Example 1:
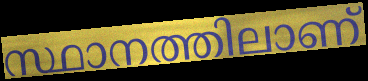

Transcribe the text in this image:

സ്ഥാനത്തിലാണ്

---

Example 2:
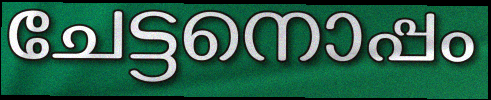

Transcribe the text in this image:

ചേട്ടനൊപ്പം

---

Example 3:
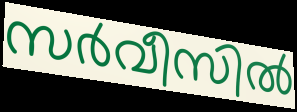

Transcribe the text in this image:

സർവീസിൽ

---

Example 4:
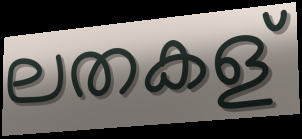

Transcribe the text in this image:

ലതകള്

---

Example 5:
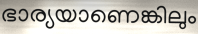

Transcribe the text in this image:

ഭാര്യയാണെങ്കിലും